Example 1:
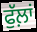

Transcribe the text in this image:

ਫੁੱਲ਼ਾਂ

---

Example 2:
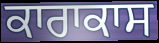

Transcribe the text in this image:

ਕਾਰਾਕਾਸ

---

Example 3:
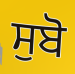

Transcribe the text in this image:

ਸੁਬੋ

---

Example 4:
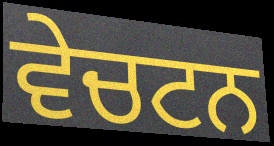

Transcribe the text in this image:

ਵੇਚਟਨ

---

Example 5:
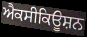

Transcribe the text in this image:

ਐਕਸੀਕਿਊਸ਼ਨ